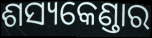
ଶସ୍ୟକେଣ୍ଡାର